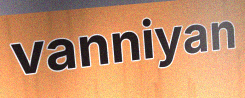
vanniyan